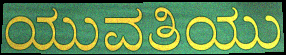
ಯುವತಿಯು